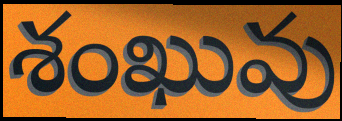
శంఖువు